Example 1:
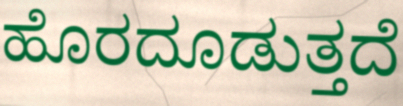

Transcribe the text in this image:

ಹೊರದೂಡುತ್ತದೆ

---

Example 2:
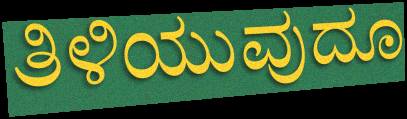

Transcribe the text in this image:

ತಿಳಿಯುವುದೂ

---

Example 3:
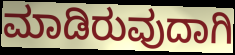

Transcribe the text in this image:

ಮಾಡಿರುವುದಾಗಿ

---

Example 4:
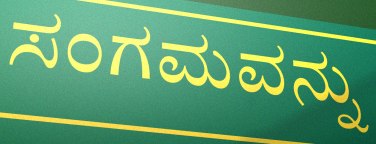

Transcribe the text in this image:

ಸಂಗಮವನ್ನು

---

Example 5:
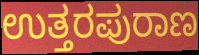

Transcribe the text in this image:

ಉತ್ತರಪುರಾಣ